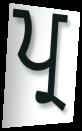
ਪ੍ਰ